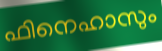
ഫിനെഹാസും